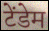
टेंडेम